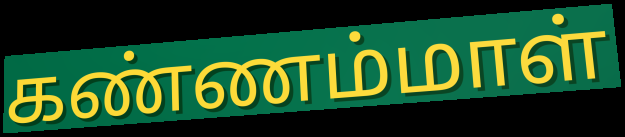
கண்ணம்மாள்